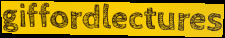
giffordlectures